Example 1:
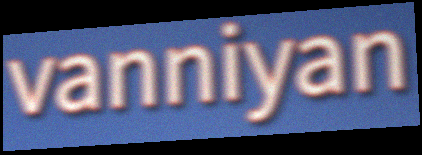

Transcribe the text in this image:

vanniyan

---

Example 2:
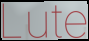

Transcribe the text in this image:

Lute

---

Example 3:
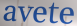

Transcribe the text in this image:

avete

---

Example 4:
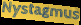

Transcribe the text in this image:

Nystagmus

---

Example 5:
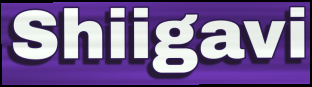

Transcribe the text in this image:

Shiigavi